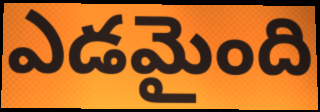
ఎడమైంది